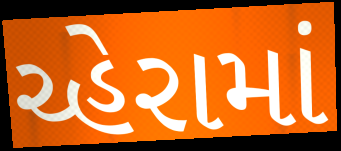
ચ્હેરામાં